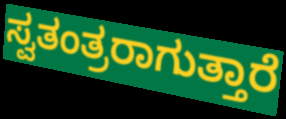
ಸ್ವತಂತ್ರರಾಗುತ್ತಾರೆ